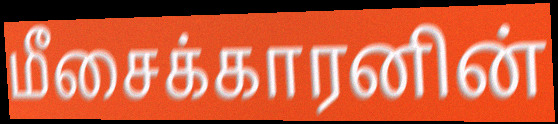
மீசைக்காரனின்